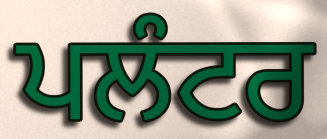
ਪਲੰਟਰ